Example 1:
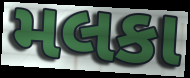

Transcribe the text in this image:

મલકા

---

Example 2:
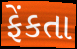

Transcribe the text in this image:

ફેંકતા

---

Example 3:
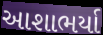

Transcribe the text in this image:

આશાભર્યા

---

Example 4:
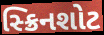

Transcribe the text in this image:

સ્ક્રિનશોટ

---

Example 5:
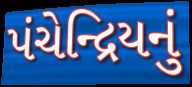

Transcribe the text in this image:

પંચેન્દ્રિયનું